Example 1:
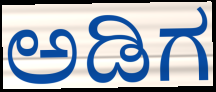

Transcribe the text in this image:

ಅಡಿಗ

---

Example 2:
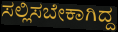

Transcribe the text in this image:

ಸಲ್ಲಿಸಬೇಕಾಗಿದ್ದ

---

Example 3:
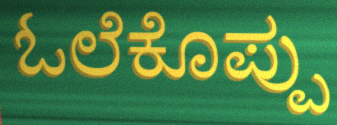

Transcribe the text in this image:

ಓಲೆಕೊಪ್ಪು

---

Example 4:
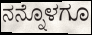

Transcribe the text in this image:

ನನ್ನೊಳಗೂ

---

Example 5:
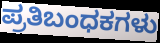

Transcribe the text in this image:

ಪ್ರತಿಬಂಧಕಗಳು